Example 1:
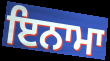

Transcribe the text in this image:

ਇਨਾਮਾ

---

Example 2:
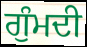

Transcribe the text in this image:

ਗੁੰਮਦੀ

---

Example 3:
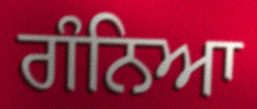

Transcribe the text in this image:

ਗੰਨਿਆ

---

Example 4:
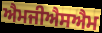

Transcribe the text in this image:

ਐਮਜੀਐਸਐਮ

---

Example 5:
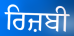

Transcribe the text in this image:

ਰਿਜ਼ਬੀ